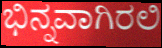
ಭಿನ್ನವಾಗಿರಲಿ